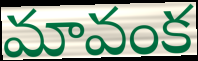
మావంక